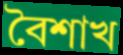
বৈশাখ